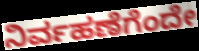
ನಿರ್ವಹಣೆಗೆಂದೇ